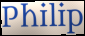
Philip